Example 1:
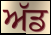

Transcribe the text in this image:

ਅੱਡ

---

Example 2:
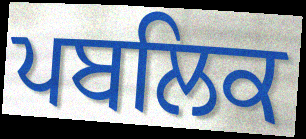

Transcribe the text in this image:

ਪਬਲਿਕ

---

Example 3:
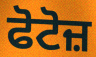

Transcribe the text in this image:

ਫੋਟੋਜ਼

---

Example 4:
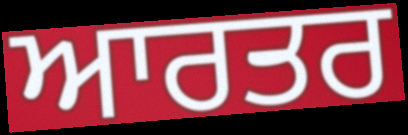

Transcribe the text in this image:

ਆਰਤਰ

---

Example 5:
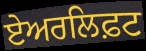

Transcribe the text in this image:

ਏਅਰਲਿਫ਼ਟ